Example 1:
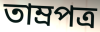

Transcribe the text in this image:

তাম্রপত্র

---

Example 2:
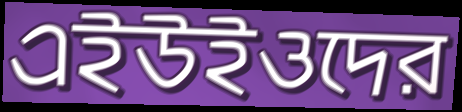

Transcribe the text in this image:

এইউইওদের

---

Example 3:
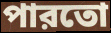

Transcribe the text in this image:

পারতো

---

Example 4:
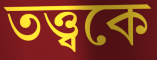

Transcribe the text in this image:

তত্ত্বকে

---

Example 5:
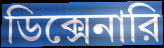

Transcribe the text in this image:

ডিক্সেনারি